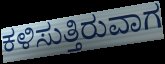
ಕಳಿಸುತ್ತಿರುವಾಗ